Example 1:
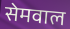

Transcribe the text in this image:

सेमवाल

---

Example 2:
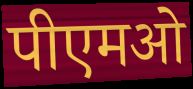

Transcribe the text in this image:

पीएमओ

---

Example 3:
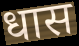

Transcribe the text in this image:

धास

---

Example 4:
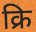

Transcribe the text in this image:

क्रि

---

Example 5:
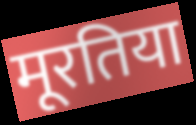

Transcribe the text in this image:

मूरतिया